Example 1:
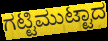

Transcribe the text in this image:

ಗಟ್ಟಿಮುಟ್ಟಾದ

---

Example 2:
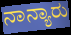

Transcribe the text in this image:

ನಾನ್ಯಾರು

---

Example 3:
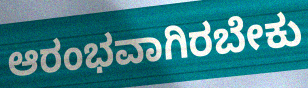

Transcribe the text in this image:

ಆರಂಭವಾಗಿರಬೇಕು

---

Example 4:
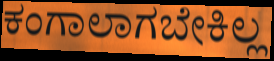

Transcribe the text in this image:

ಕಂಗಾಲಾಗಬೇಕಿಲ್ಲ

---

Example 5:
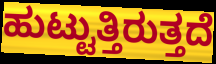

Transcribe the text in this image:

ಹುಟ್ಟುತ್ತಿರುತ್ತದೆ